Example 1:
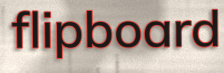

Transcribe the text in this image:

flipboard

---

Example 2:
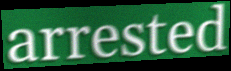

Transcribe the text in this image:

arrested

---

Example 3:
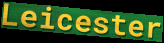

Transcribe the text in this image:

Leicester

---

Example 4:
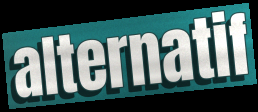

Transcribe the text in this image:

alternatif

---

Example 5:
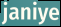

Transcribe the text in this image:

janiye